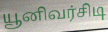
யூனிவர்சிடி